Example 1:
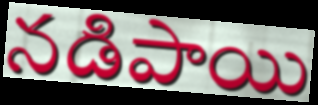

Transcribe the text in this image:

నడిపాయి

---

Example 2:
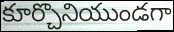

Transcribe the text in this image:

కూర్చొనియుండగా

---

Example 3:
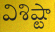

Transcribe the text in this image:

విశిష్టా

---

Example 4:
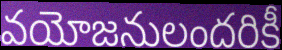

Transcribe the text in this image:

వయోజనులందరికీ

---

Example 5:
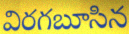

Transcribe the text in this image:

విరగబూసిన